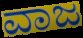
ವಾಜ